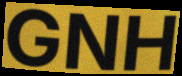
GNH